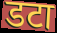
डटा